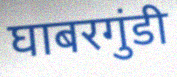
घाबरगुंडी